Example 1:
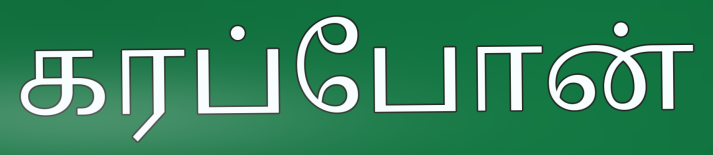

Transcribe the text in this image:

கரப்போன்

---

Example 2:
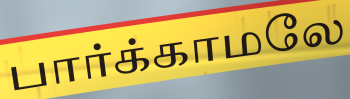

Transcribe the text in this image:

பார்க்காமலே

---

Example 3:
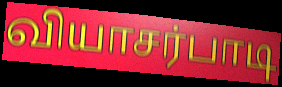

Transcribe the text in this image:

வியாசர்பாடி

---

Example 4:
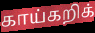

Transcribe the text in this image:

காய்கறிக்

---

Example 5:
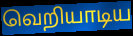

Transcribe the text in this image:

வெறியாடிய